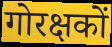
गोरक्षकों